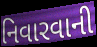
નિવારવાની